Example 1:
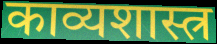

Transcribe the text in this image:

काव्यशास्त्र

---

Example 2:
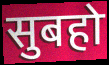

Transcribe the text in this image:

सुबहो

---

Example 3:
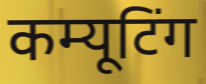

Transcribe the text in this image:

कम्यूटिंग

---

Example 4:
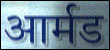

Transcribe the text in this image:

आर्मड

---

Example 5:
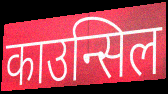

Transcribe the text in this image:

काउन्सिल